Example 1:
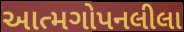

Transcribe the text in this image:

આત્મગોપનલીલા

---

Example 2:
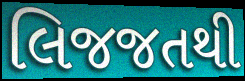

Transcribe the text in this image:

લિજજતથી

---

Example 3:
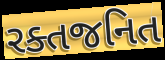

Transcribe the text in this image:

રક્તજનિત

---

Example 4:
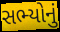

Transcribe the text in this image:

સભ્યોનું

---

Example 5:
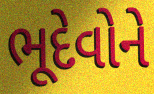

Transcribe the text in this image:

ભૂદેવોને